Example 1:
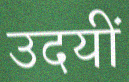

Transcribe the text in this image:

उदयीं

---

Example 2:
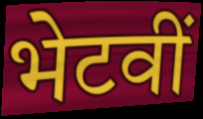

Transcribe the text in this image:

भेटवीं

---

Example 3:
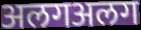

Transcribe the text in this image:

अलगअलग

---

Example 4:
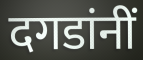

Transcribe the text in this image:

दगडांनीं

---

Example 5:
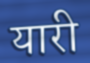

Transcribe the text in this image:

यारी